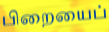
பிறையைப்